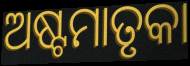
ଅଷ୍ଟମାତୃକା